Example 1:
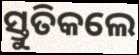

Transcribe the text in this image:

ସ୍ତୁତିକଲେ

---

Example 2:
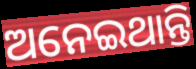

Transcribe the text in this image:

ଅନେଇଥାନ୍ତି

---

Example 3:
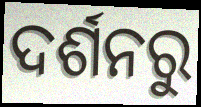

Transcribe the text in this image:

ଦର୍ଶନରୁ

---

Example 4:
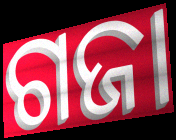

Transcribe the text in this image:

ଗଜା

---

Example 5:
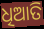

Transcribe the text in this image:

ଧିଆତି